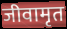
जीवामृत